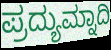
ಪ್ರದ್ಯುಮ್ನಾದಿ